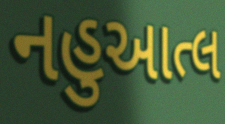
નહુઆત્લ